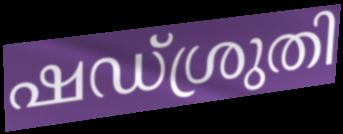
ഷഡ്ശ്രുതി